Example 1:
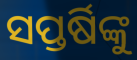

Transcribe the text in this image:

ସପ୍ତର୍ଷିଙ୍କୁ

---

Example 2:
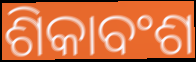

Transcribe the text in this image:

ଶିକାବଂଶ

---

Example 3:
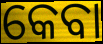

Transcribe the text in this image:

କେବା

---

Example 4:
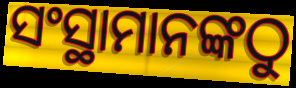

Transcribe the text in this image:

ସଂସ୍ଥାମାନଙ୍କଠୁ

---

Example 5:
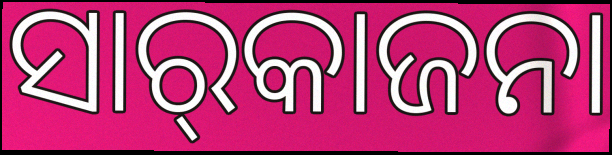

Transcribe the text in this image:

ସାର୍‌କାଜନା